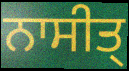
ਨਾਸੀਤ੍